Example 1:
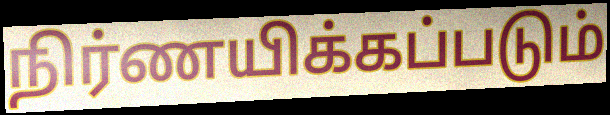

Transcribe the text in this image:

நிர்ணயிக்கப்படும்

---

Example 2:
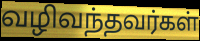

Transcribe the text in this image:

வழிவந்தவர்கள்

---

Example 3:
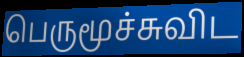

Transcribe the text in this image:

பெருமூச்சுவிட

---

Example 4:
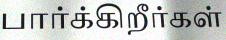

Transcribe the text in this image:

பார்க்கிறீர்கள்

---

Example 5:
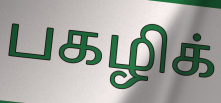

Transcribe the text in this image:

பகழிக்